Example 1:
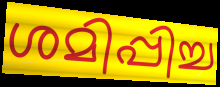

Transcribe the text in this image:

ശമിപ്പിച്ച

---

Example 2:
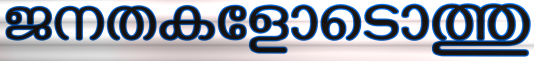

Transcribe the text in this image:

ജനതകളോടൊത്തു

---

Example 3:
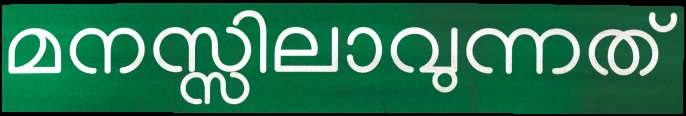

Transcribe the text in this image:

മനസ്സിലാവുന്നത്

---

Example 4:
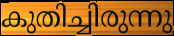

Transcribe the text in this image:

കുതിച്ചിരുന്നു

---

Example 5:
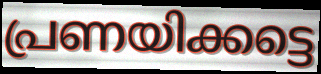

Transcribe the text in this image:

പ്രണയിക്കട്ടെ